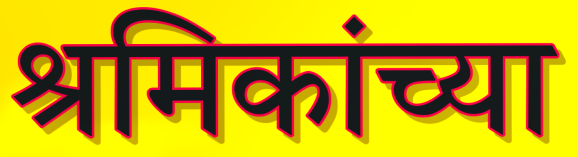
श्रमिकांच्या